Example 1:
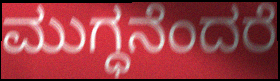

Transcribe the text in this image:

ಮುಗ್ಧನೆಂದರೆ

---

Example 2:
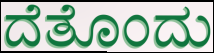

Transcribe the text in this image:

ದೆತೊಂದು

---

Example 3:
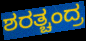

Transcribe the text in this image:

ಶರತ್ಚಂದ್ರ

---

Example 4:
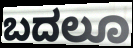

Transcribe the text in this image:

ಬದಲೂ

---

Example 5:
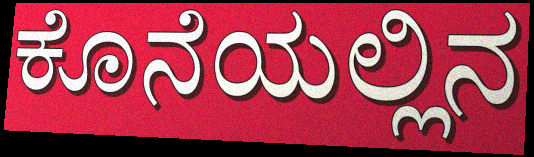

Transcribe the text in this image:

ಕೊನೆಯಲ್ಲಿನ